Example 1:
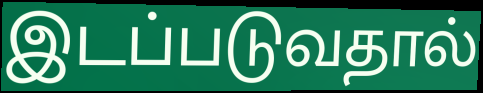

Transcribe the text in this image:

இடப்படுவதால்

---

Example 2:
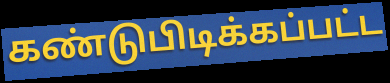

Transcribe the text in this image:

கண்டுபிடிக்கப்பட்ட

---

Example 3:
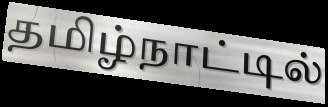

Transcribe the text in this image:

தமிழ்நாட்டில்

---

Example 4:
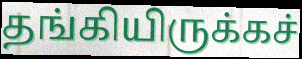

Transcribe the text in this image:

தங்கியிருக்கச்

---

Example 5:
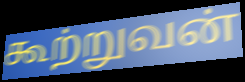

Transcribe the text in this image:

கூற்றுவன்